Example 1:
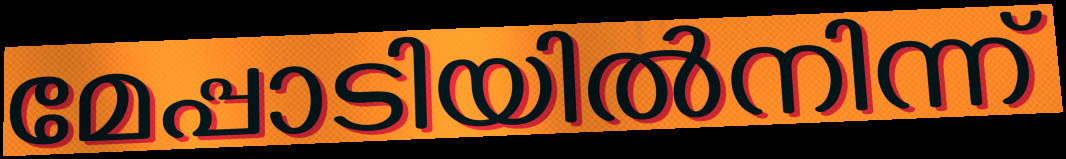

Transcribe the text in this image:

മേപ്പാടിയിൽനിന്ന്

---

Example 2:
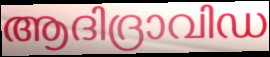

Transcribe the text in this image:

ആദിദ്രാവിഡ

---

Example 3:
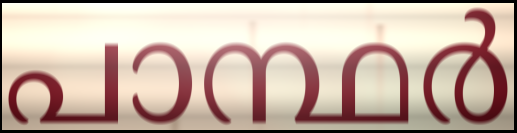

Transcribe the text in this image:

പാന്ഥർ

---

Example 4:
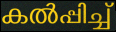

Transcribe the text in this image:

കൽപ്പിച്ച്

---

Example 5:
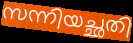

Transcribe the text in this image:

സന്നിയച്ഛതി